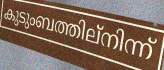
കുടുംബത്തില്നിന്ന്